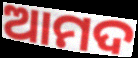
ଆମଦ